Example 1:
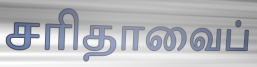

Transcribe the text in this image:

சரிதாவைப்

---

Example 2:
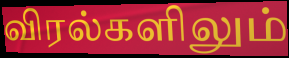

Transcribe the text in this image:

விரல்களிலும்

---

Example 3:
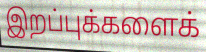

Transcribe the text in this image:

இறப்புக்களைக்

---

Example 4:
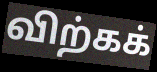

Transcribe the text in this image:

விற்கக்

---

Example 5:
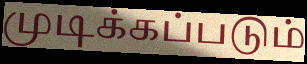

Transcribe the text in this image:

முடிக்கப்படும்